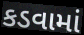
કડવામાં